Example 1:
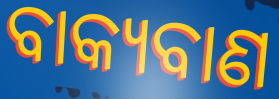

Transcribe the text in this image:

ବାକ୍ୟବାଣ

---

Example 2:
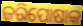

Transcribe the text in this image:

ଜରିପୋଷାକ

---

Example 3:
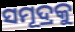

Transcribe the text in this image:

ସମୂଦ୍ରକୁ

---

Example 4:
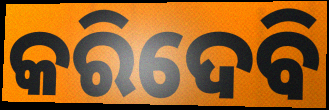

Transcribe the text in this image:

କରିଦେବି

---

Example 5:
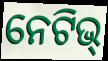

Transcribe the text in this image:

ନେଟିଭ୍